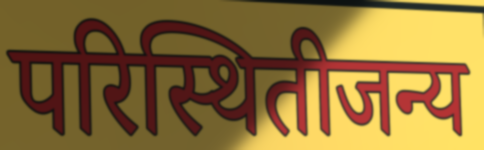
परिस्थितीजन्य